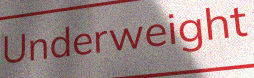
Underweight